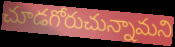
చూడగోరుచున్నామని